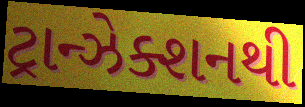
ટ્રાન્ઝેક્શનથી